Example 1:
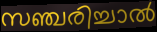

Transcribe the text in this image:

സഞ്ചരിച്ചാൽ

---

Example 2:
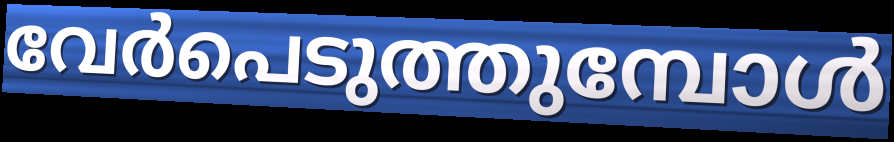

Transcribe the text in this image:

വേർപെടുത്തുമ്പോൾ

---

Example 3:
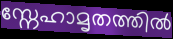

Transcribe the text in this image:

സ്നേഹാമൃതത്തിൽ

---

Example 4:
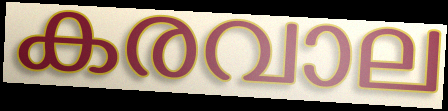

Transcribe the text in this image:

കരവാല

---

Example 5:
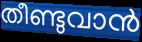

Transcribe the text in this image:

തീണ്ടുവാൻ